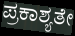
ಪ್ರಕಾಶ್ಯತೇ